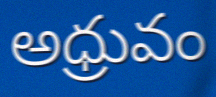
అధ్రువం